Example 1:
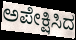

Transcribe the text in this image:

ಅಪೇಕ್ಷಿಸಿದ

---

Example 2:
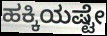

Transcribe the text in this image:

ಹಕ್ಕಿಯಷ್ಟೇ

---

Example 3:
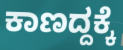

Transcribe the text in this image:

ಕಾಣದ್ದಕ್ಕೆ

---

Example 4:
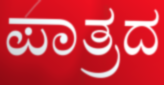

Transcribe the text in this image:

ಪಾತ್ರದ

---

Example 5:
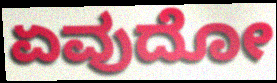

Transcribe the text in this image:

ಏವುದೋ